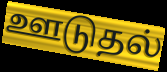
ஊடுதல்